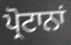
ਪ੍ਰੋਟਾਨਾਂ